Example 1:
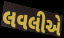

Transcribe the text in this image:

લવલીએ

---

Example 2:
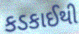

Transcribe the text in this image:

કડકાઈથી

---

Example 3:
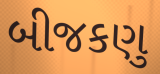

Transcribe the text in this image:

બીજકણુ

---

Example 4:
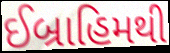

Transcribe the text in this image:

ઈબ્રાહિમથી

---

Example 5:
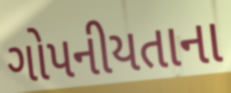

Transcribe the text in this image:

ગોપનીયતાના